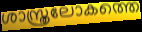
ശാസ്ത്രലോകത്തെ